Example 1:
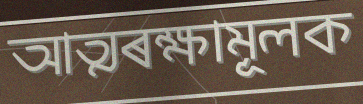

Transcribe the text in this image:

আত্মৰক্ষামূলক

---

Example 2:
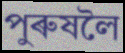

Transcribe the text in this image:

পুৰুষলৈ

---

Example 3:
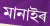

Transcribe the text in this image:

মানাইৰ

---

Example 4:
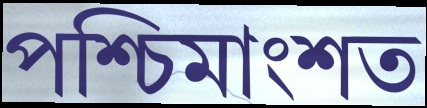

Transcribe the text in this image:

পশ্চিমাংশত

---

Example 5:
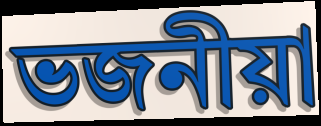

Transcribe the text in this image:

ভজনীয়া